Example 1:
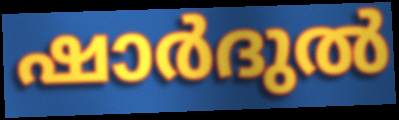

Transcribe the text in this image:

ഷാർദുൽ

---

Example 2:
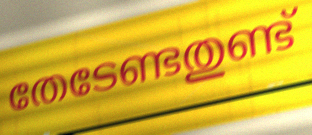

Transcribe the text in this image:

തേടേണ്ടതുണ്ട്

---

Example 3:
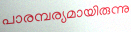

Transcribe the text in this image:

പാരമ്പര്യമായിരുന്നു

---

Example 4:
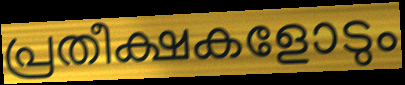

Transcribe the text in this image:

പ്രതീക്ഷകളോടും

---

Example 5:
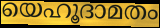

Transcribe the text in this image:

യെഹൂദാമതം